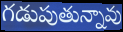
గడుపుతున్నావు